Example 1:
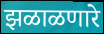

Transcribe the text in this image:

झळाळणारे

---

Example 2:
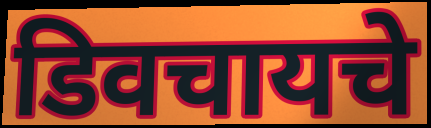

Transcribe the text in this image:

डिवचायचे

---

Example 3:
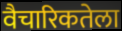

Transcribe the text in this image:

वैचारिकतेला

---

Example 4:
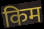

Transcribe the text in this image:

किम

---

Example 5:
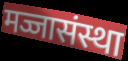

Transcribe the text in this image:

मज्जासंस्था